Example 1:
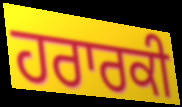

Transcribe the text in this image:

ਹਰਾਰਕੀ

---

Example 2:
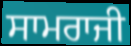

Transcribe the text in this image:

ਸਾਮਰਾਜੀ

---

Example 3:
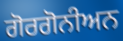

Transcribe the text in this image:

ਗੋਰਗੋਨੀਅਨ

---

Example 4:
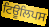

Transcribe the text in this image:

ਟਿਊਲਿਪਸ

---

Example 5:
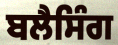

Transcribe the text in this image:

ਬਲੈਸਿੰਗ